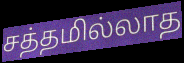
சத்தமில்லாத